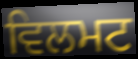
ਵਿਲਮਟ